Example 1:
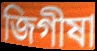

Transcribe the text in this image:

জিগীষা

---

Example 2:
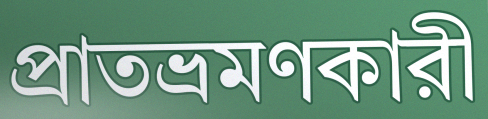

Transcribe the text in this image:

প্রাতভ্রমণকারী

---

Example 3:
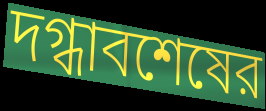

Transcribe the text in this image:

দগ্ধাবশেষের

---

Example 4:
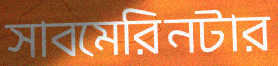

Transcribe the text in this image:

সাবমেরিনটার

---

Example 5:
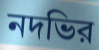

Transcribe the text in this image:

নদভির